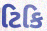
ટિકિ